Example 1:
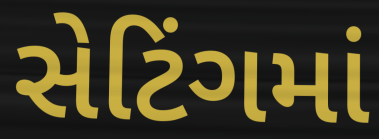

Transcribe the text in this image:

સેટિંગમાં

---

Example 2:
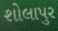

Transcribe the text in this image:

શોલાપુર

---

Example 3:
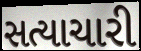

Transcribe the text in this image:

સત્યાચારી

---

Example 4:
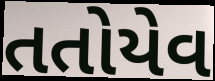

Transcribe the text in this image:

તતોયેવ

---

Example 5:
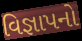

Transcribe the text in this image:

વિજ્ઞાપનો